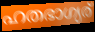
ഹതഭാഗ്യര്